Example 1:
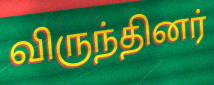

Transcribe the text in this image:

விருந்தினர்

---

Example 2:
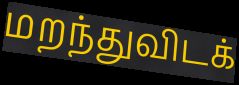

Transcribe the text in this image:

மறந்துவிடக்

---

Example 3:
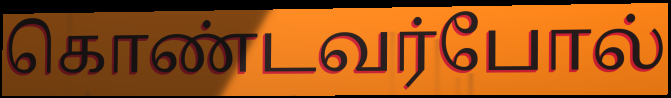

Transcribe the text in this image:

கொண்டவர்போல்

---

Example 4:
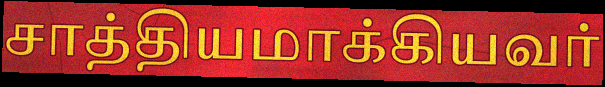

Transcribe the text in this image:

சாத்தியமாக்கியவர்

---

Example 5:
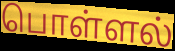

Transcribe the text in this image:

பொள்ளல்